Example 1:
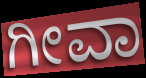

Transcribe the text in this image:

ಗೀವಾ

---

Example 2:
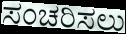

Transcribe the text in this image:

ಸಂಚರಿಸಲು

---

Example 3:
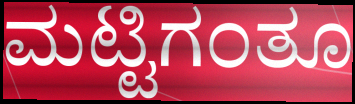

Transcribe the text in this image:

ಮಟ್ಟಿಗಂತೂ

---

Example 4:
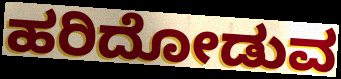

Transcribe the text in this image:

ಹರಿದೋಡುವ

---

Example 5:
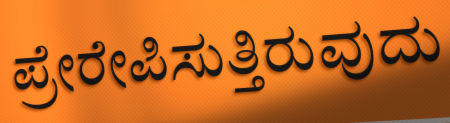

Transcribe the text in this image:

ಪ್ರೇರೇಪಿಸುತ್ತಿರುವುದು